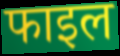
फाइल